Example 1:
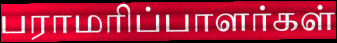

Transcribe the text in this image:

பராமரிப்பாளர்கள்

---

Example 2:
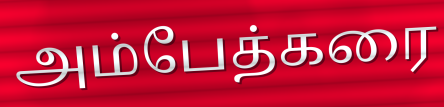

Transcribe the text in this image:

அம்பேத்கரை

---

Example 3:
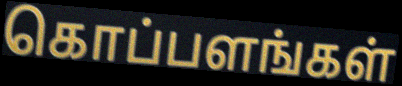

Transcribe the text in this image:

கொப்பளங்கள்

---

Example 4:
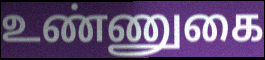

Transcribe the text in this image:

உண்ணுகை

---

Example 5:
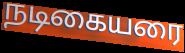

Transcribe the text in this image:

நடிகையரை